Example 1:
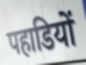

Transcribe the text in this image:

पहाडियों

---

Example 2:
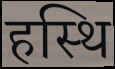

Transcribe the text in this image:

हस्थि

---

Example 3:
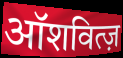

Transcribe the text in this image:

ऑशवित्ज़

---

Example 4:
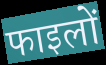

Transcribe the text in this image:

फाइलों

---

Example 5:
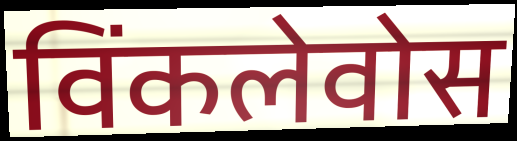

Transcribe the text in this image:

विंकलेवोस